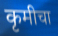
कृमीचा